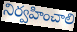
నిర్వహించాలి